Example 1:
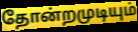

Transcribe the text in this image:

தோன்றமுடியும்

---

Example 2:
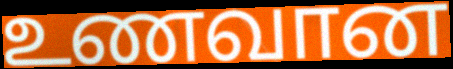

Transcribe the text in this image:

உணவான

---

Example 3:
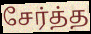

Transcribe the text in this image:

சேர்த்த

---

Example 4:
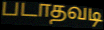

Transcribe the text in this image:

படாதவடி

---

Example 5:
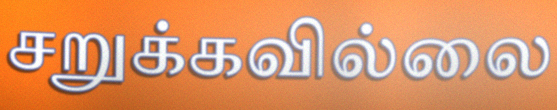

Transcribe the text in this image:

சறுக்கவில்லை